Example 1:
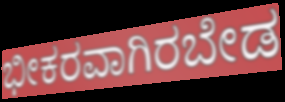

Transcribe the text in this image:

ಭೀಕರವಾಗಿರಬೇಡ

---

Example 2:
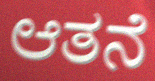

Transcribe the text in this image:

ಆತನೆ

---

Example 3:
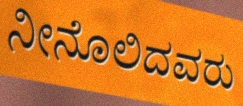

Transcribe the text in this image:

ನೀನೊಲಿದವರು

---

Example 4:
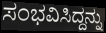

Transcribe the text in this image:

ಸಂಭವಿಸಿದ್ದನ್ನು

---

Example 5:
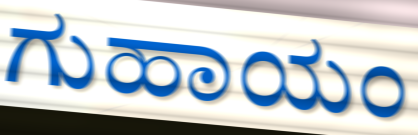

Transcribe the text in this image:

ಗುಹಾಯಂ